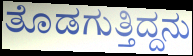
ತೊಡಗುತ್ತಿದ್ದನು